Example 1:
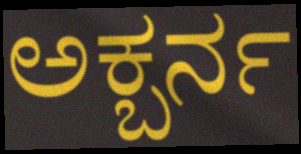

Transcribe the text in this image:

ಅಕ್ಬರ್ನ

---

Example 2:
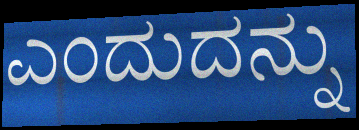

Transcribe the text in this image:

ಎಂದುದನ್ನು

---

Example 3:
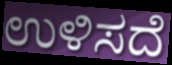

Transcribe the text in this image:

ಉಳಿಸದೆ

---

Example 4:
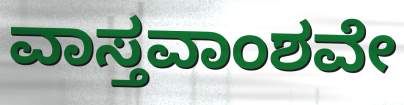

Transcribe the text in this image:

ವಾಸ್ತವಾಂಶವೇ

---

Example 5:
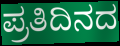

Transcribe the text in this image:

ಪ್ರತಿದಿನದ